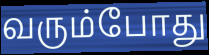
வரும்போது